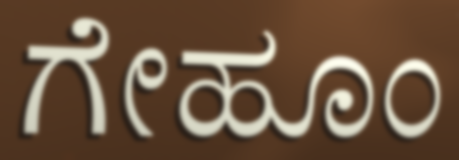
ಗೇಹೂಂ